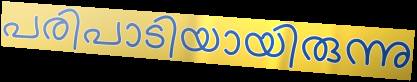
പരിപാടിയായിരുന്നു